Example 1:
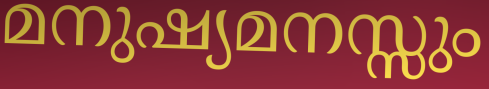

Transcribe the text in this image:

മനുഷ്യമനസ്സും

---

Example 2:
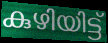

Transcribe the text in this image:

കുഴിയിട്ട്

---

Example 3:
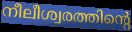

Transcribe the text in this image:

നീലീശ്വരത്തിന്റെ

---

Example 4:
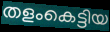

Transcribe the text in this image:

തളംകെട്ടിയ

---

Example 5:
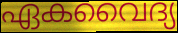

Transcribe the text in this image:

ഏകവൈദ്യ